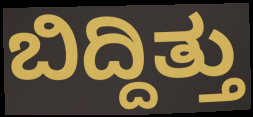
ಬಿದ್ದಿತ್ತು